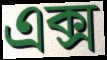
এক্স